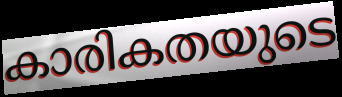
കാരികതയുടെ